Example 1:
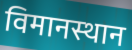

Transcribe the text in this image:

विमानस्थान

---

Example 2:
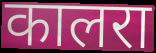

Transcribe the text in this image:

कालरा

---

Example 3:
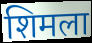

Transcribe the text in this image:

शिमला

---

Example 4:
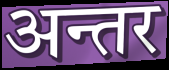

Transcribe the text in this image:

अन्तर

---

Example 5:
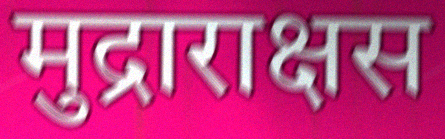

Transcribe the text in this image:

मुद्राराक्षस